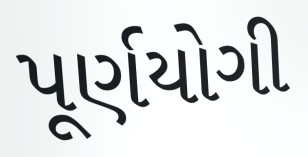
પૂર્ણયોગી